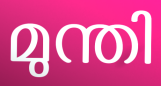
മുന്തി